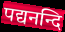
पद्यनन्दि